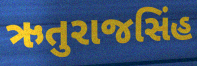
ઋતુરાજસિંહ